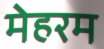
मेहरम